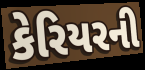
કેરિયરની